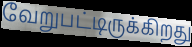
வேறுபட்டிருக்கிறது